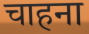
चाहना